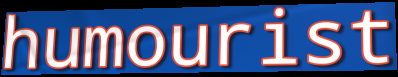
humourist